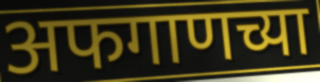
अफगाणच्या